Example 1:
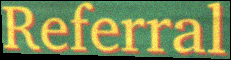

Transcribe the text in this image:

Referral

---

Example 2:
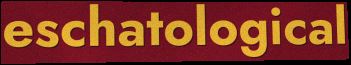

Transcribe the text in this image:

eschatological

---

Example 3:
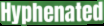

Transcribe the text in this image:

Hyphenated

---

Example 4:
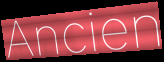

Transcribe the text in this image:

Ancien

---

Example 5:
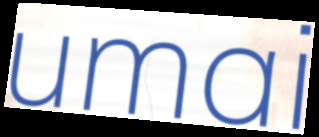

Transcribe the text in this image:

umai